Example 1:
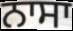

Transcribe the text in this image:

ਨਾਸਾ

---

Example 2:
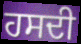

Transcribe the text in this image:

ਹਸਦੀ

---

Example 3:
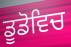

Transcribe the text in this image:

ਡੂਡੋਵਿਚ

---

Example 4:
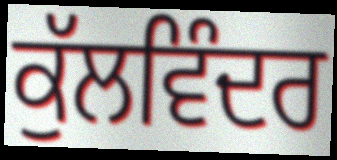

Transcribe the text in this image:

ਕੁੱਲਵਿੰਦਰ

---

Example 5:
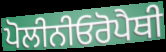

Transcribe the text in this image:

ਪੋਲੀਨੀਓਰੋਪੈਥੀ